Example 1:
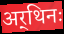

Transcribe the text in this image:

अर्थिनः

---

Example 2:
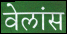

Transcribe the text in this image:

वेलांस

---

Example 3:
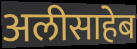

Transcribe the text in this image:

अलीसाहेब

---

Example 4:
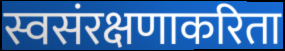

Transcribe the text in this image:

स्वसंरक्षणाकरिता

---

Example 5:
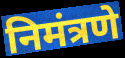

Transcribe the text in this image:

निमंत्रणे